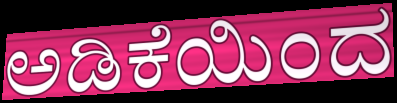
ಅಡಿಕೆಯಿಂದ